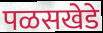
पळसखेडे